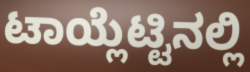
ಟಾಯ್ಲೆಟ್ಟಿನಲ್ಲಿ